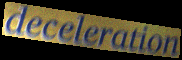
deceleration